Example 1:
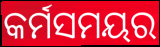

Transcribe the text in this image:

କର୍ମସମୟର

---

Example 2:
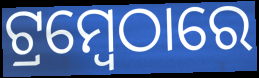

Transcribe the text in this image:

ଟ୍ରମ୍ବେଠାରେ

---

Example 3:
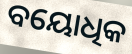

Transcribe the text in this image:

ବୟୋଧିକ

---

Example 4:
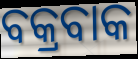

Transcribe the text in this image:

ବକ୍ରବାକ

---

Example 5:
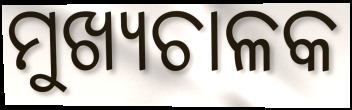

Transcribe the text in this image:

ମୁଖ୍ୟଚାଳକ